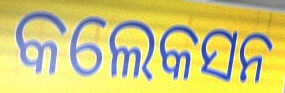
କଲେକସନ